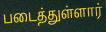
படைத்துள்ளார்